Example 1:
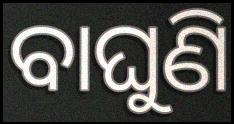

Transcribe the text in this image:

ବାଘୁଣି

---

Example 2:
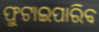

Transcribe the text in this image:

ଫୁଟାଇପାରିବ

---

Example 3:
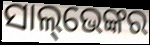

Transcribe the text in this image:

ସାଲ୍‌ଭେଙ୍କର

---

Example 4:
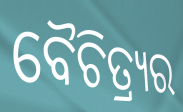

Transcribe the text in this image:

ବୈଚିତ୍ର୍ୟର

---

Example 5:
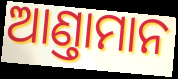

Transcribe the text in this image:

ଆଣ୍ତାମାନ